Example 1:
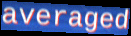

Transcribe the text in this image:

averaged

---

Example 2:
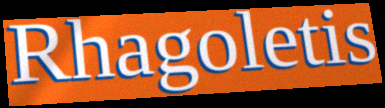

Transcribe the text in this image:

Rhagoletis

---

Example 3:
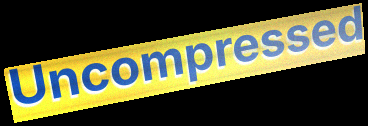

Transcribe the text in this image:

Uncompressed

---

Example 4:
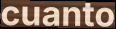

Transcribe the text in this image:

cuanto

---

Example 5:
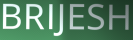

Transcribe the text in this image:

BRIJESH